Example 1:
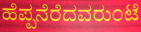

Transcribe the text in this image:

ಹೆಪ್ಪನೆರೆದವರುಂಟೆ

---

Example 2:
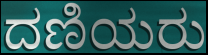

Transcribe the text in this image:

ದಣಿಯರು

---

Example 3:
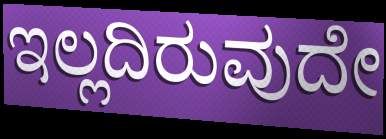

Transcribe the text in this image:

ಇಲ್ಲದಿರುವುದೇ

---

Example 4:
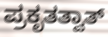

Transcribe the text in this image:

ಪ್ರಕೃತತ್ವಾತ್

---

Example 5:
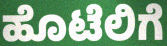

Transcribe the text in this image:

ಹೊಟೆಲಿಗೆ